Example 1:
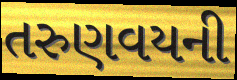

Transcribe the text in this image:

તરુણવયની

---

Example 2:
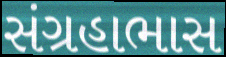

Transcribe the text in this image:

સંગ્રહાભાસ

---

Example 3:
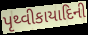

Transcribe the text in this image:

પૃથ્વીકાયાદિની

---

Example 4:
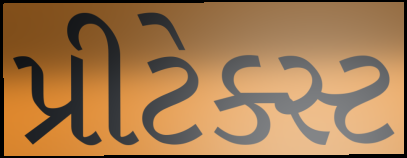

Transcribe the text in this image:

પ્રીટેક્સ્ટ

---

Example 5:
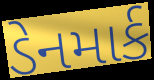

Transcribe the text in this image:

ડેનમાર્ક